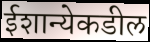
ईशान्येकडील